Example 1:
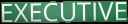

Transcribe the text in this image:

EXECUTIVE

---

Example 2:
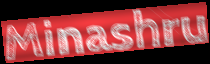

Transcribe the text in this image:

Minashru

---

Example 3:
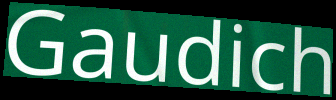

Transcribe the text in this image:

Gaudich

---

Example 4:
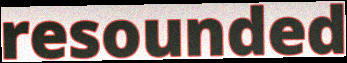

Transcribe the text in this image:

resounded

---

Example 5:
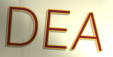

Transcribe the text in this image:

DEA